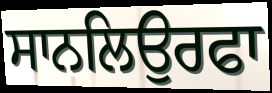
ਸਾਨਲਿਉਰਫਾ